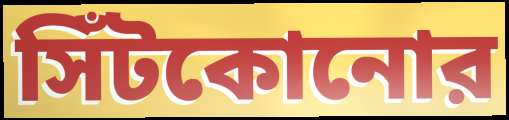
সিঁটকোনোর